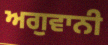
ਅਗੁਵਾਨੀ